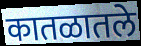
कातळातले